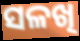
ସଳଖି